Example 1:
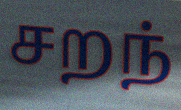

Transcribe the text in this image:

சறந்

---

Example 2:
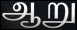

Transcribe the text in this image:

ஆறு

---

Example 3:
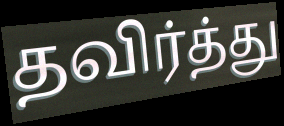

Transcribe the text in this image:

தவிர்த்து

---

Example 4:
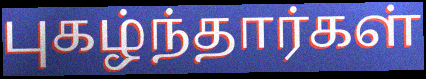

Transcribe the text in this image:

புகழ்ந்தார்கள்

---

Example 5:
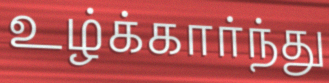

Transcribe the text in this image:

உழ்க்கார்ந்து